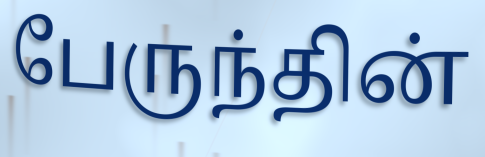
பேருந்தின்